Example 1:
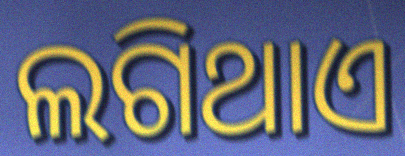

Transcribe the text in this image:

ଲଗିଥାଏ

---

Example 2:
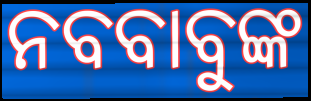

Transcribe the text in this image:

ନବବାବୁଙ୍କ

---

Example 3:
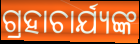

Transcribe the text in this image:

ଗ୍ରହାଚାର୍ଯ୍ୟଙ୍କ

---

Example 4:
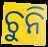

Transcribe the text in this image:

ଚୁନି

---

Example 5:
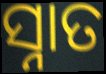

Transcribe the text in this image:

ସ୍ନାତ